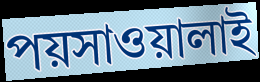
পয়সাওয়ালাই